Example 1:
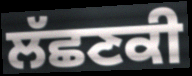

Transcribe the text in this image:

ਲੱਛਣਕੀ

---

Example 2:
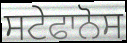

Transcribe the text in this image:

ਸਟੇਫਾਨੋਸ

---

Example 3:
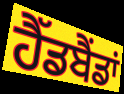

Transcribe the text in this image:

ਹੈੱਡਬੈਂਡਾਂ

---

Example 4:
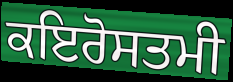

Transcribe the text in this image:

ਕਇਰੋਸਤਮੀ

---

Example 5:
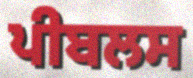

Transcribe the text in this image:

ਪੀਬਲਸ